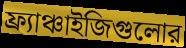
ফ্র্যাঞ্চাইজিগুলোর